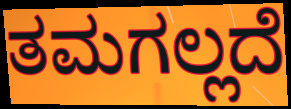
ತಮಗಲ್ಲದೆ